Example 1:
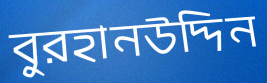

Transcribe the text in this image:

বুরহানউদ্দিন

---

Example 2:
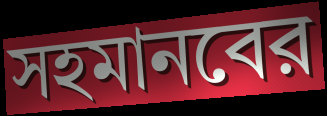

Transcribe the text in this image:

সহমানবের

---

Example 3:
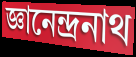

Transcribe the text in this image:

জ্ঞানেন্দ্রনাথ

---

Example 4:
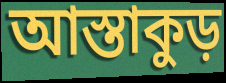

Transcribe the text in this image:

আস্তাকুড়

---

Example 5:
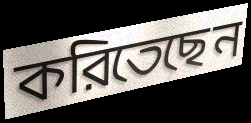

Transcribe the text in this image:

করিতেছেন